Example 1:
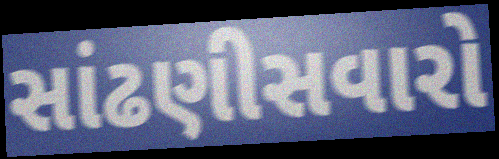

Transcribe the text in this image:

સાંઢણીસવારો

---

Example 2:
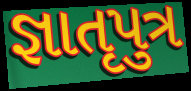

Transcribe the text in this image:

જ્ઞાતૃપુત્ર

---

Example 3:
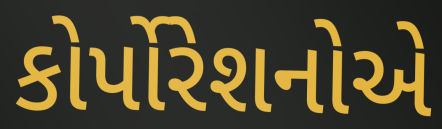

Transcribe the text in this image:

કોર્પોરેશનોએ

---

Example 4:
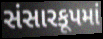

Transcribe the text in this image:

સંસારકૂપમાં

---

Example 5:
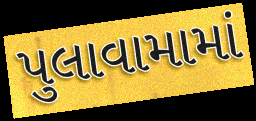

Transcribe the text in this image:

પુલાવામામાં